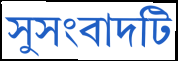
সুসংবাদটি